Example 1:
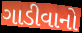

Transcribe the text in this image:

ગાડીવાનો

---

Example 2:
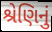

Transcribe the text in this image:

શ્રેણિનું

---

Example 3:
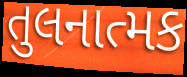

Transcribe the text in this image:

તુલનાત્મક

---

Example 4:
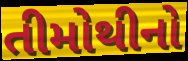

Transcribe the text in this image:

તીમોથીનો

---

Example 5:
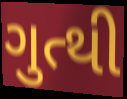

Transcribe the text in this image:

ગુત્થી